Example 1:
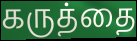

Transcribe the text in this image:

கருத்தை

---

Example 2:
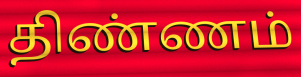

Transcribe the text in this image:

திண்ணம்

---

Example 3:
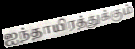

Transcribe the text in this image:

ஐந்தாயிரத்துக்கும்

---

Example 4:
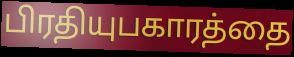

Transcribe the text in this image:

பிரதியுபகாரத்தை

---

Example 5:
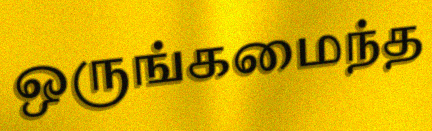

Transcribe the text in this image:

ஒருங்கமைந்த